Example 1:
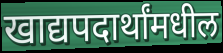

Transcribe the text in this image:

खाद्यपदार्थांमधील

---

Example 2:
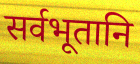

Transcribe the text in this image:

सर्वभूतानि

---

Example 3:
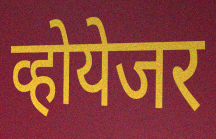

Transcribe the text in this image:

व्होयेजर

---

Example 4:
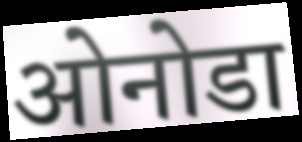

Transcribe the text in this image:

ओनोडा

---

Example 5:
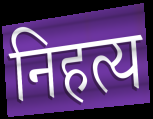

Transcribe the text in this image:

निहत्य